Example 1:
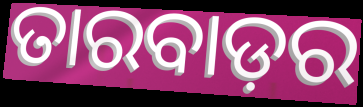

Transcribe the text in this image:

ତାରବାଡ଼ର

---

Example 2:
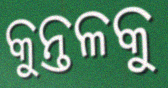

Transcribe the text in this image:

କୁନ୍ତଳକୁ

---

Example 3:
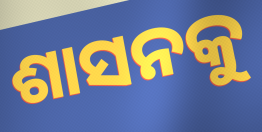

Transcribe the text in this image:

ଶାସନକୁ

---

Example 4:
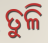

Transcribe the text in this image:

ତୁଳି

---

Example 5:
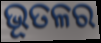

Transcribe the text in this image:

ଭୂତଳର